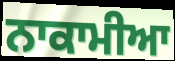
ਨਾਕਾਮੀਆ